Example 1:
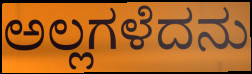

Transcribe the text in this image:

ಅಲ್ಲಗಳೆದನು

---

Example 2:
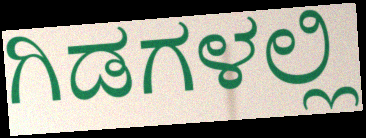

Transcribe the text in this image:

ಗಿಡಗಳಲ್ಲಿ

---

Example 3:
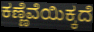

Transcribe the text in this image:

ಕಣ್ಣೆವೆಯಿಕ್ಕದೆ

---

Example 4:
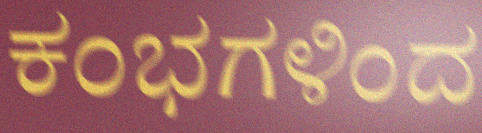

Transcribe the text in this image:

ಕಂಭಗಳಿಂದ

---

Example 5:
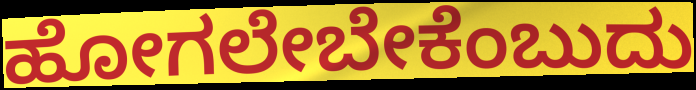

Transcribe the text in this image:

ಹೋಗಲೇಬೇಕೆಂಬುದು